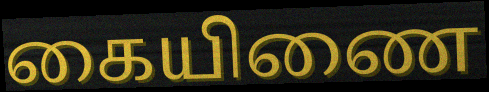
கையிணை